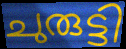
ചുരുട്ടി